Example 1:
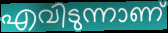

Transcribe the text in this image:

എവിടുന്നാണ്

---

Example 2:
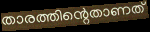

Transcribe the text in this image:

താരത്തിന്റെതാണത്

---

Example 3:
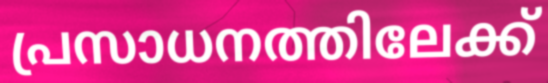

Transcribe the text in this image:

പ്രസാധനത്തിലേക്ക്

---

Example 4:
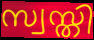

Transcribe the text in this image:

സ്വസ്തി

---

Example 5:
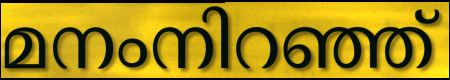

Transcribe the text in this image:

മനംനിറഞ്ഞ്